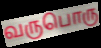
வருபொரு